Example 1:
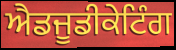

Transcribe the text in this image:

ਐਡਜੂਡੀਕੇਟਿੰਗ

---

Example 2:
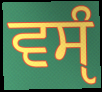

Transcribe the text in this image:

ਵਸੵੰ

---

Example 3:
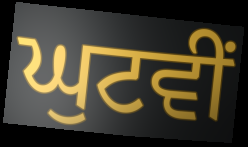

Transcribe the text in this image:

ਘੁਟਵੀਂ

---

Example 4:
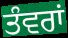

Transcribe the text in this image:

ਤੰਵਰਾਂ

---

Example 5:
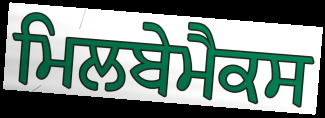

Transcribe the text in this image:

ਮਿਲਬੇਮੈਕਸ